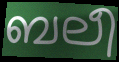
ബലീ